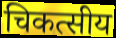
चिकत्सीय